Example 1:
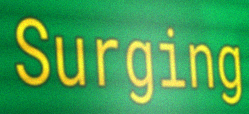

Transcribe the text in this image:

Surging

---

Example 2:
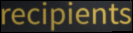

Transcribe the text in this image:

recipients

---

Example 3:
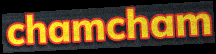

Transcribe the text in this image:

chamcham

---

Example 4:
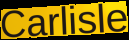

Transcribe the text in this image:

Carlisle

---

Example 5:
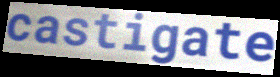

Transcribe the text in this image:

castigate